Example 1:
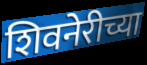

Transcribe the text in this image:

शिवनेरीच्या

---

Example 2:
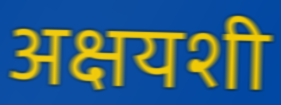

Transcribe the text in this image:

अक्षयशी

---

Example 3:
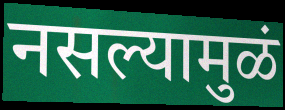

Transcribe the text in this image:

नसल्यामुळं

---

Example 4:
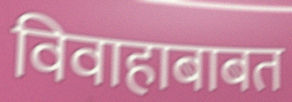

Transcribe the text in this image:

विवाहाबाबत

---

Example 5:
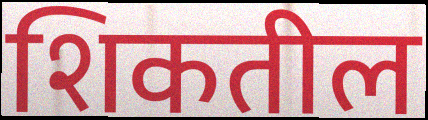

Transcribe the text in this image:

शिकतील